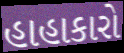
હાહાકારો